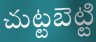
చుట్టబెట్టి